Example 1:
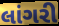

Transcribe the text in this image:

લાંગરી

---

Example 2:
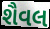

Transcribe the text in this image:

શૈવલ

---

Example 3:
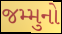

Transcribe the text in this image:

જમ્મુનો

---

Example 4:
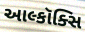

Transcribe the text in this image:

આલ્કૉક્સિ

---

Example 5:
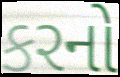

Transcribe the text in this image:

કરનો